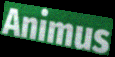
Animus